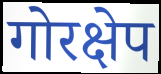
गोरक्षेप